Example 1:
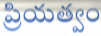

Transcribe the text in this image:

ప్రియత్వం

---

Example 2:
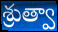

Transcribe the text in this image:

శ్రుత్వా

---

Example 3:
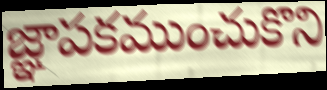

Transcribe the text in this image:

జ్ఞాపకముంచుకొని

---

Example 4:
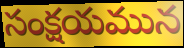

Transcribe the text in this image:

సంక్షయమున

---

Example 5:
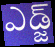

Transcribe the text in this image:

ఎడ్జ్